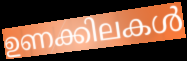
ഉണക്കിലകൾ